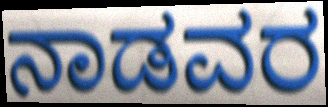
ನಾಡವರ